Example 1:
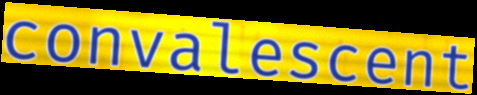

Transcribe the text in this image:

convalescent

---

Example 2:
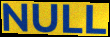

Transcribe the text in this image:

NULL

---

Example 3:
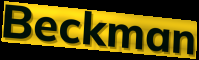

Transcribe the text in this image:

Beckman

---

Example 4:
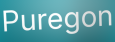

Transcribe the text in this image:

Puregon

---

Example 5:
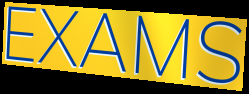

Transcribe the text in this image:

EXAMS